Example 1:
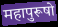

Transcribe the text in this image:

महापुरूषो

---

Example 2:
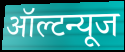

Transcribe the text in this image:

ऑल्टन्यूज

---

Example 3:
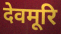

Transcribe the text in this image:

देवमूरि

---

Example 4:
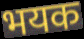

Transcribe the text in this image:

भयक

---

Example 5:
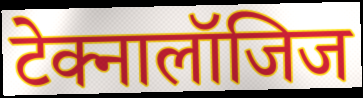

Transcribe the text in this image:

टेक्नालॉजिज